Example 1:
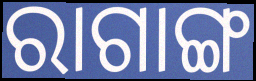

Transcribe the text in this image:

ରାଗାଙ୍ଗ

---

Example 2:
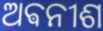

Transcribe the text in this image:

ଅଵନୀଶ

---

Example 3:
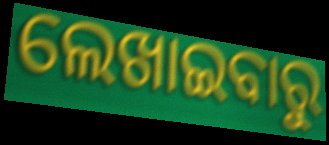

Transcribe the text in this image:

ଲେଖାଇବାରୁ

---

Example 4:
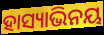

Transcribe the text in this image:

ହାସ୍ୟାଭିନୟ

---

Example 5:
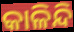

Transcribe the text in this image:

କାଳିନ୍ଦି